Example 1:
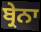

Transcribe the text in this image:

ਬ੍ਰੇਨਾ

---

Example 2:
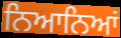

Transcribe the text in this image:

ਨਿਆਨਿਆਂ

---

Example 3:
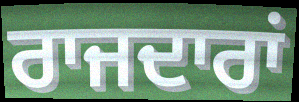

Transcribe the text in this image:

ਰਾਜਦਾਰਾਂ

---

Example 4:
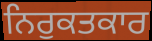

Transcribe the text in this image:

ਨਿਰੁਕਤਕਾਰ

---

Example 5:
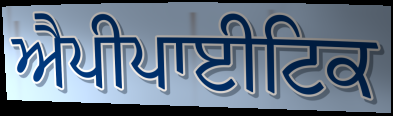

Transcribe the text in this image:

ਐਪੀਪਾਈਟਿਕ